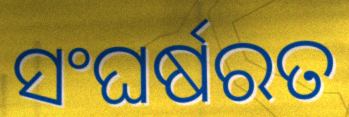
ସଂଘର୍ଷରତ